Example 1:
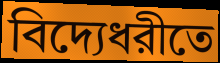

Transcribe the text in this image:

বিদ্যেধরীতে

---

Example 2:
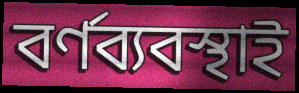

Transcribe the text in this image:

বর্ণব্যবস্থাই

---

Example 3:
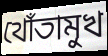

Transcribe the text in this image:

থোঁতামুখ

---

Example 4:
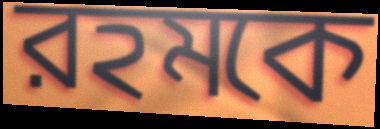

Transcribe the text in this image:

রহমকে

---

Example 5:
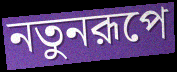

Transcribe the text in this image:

নতুনরূপে